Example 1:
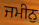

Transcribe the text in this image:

ਜਮੀਨੁ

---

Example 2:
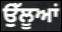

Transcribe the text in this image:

ਉੱਲੂਆਂ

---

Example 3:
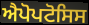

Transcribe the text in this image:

ਐਪੋਪਟੋਸਿਸ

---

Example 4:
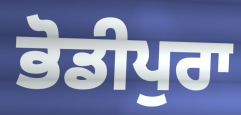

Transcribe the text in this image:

ਭੋਡੀਪੁਰਾ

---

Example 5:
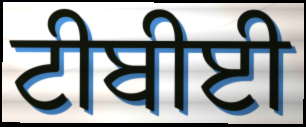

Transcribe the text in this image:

ਟੀਬੀਈ